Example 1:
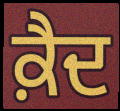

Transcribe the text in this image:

ਕ਼ੈਦ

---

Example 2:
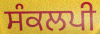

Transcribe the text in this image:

ਸੰਕਲਪੀ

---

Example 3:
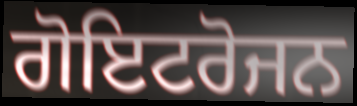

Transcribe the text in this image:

ਗੋਇਟਰੋਜਨ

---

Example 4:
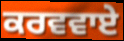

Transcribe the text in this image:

ਕਰਵਵਾਏ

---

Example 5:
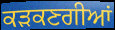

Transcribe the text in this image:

ਕੜਕਣਗੀਆਂ